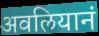
अवलियानं